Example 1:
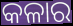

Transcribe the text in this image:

କଳାର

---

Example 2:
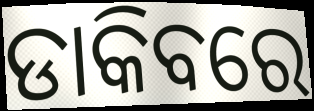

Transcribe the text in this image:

ଡାକିବରେ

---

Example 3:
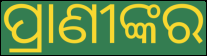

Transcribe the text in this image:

ପ୍ରାଣୀଙ୍କର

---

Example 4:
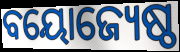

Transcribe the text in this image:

ବୟୋଜ୍ୟେଷ୍ଠ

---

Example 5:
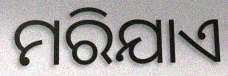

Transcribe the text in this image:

ମରିଯାଏ